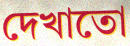
দেখাতো